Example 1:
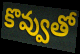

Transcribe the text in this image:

కొవ్వుతో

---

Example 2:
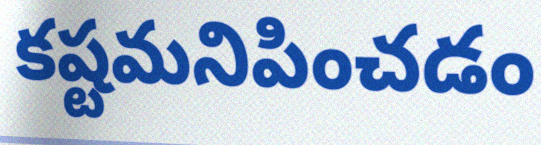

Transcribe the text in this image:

కష్టమనిపించడం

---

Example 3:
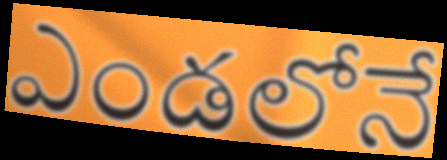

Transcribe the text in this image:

ఎండలోనే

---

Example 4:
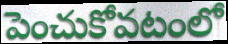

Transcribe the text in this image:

పెంచుకోవటంలో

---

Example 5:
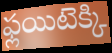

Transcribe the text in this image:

ఫ్లయిటెక్కి